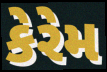
કેરેમ